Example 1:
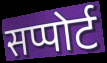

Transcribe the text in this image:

सप्पोर्ट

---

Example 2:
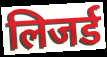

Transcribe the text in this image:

लिजर्ड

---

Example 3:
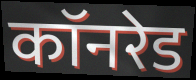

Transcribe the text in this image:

कॉनरेड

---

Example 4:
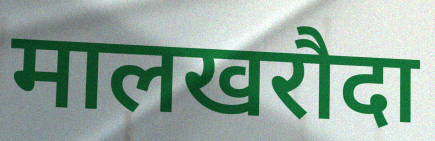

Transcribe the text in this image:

मालखरौदा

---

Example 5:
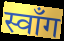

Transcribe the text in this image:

स्वाँग